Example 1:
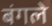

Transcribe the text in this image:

बंगले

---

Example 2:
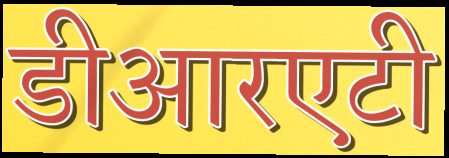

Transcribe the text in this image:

डीआरएटी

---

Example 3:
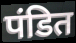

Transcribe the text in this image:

पंडित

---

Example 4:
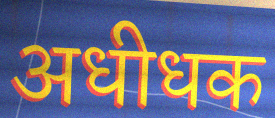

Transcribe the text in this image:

अधीधक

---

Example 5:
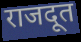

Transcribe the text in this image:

राजदूत